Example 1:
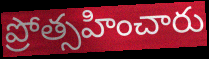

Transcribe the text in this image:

ప్రోత్సహించారు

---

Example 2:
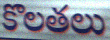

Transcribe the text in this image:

కొలతలు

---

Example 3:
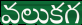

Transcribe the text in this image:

వలుకగ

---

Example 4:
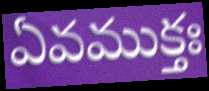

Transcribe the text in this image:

ఏవముక్తః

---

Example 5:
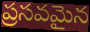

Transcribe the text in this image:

ప్రసవమైన